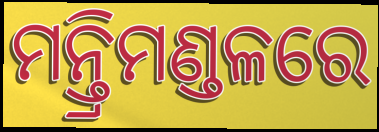
ମନ୍ତ୍ରିମଣ୍ଡଳରେ